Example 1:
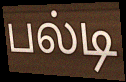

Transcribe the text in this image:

பல்டி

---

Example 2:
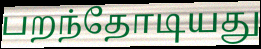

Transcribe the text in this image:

பறந்தோடியது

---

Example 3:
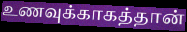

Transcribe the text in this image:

உணவுக்காகத்தான்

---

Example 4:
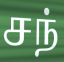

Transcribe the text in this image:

சந்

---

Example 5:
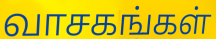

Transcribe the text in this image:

வாசகங்கள்